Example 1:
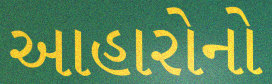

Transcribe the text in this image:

આહારોનો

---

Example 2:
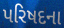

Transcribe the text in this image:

પરિષદના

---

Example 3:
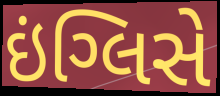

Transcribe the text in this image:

ઇંગ્લિસે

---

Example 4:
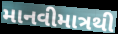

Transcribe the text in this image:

માનવીમાત્રથી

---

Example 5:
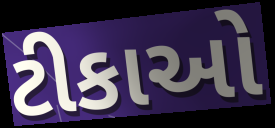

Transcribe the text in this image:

ટીકાઓ